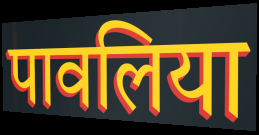
पावलिया